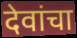
देवांचा